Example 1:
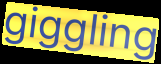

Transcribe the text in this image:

giggling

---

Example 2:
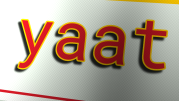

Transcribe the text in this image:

yaat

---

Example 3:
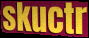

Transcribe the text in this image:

skuctr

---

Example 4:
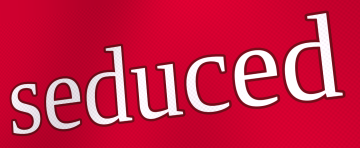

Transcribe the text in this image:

seduced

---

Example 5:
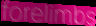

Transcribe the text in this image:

forelimbs